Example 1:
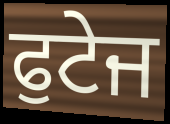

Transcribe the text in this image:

ਫੁਟੇਜ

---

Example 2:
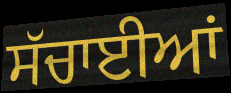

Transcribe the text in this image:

ਸੱਚਾਈਆਂ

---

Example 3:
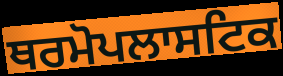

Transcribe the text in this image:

ਥਰਮੋਪਲਾਸਟਿਕ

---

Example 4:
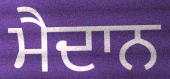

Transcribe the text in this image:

ਮੈਦਾਨ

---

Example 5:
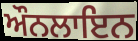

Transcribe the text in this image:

ਔਨਲਾਇਨ